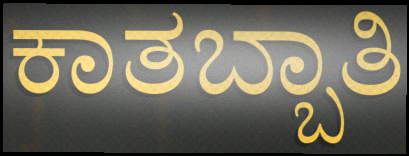
ಕಾತಬ್ಬಾತಿ